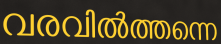
വരവിൽത്തന്നെ